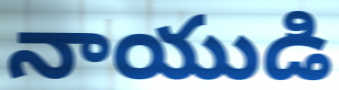
నాయుడి